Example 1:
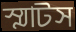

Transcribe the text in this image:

স্মাটস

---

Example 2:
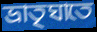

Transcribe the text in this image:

ভ্রাতৃঘাতে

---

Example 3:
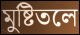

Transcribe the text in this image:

মুষ্টিতলে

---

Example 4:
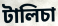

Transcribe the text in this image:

টালিচা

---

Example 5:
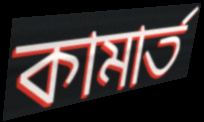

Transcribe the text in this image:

কামার্ত